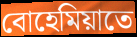
বোহেমিয়াতে